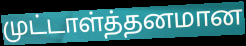
முட்டாள்த்தனமான